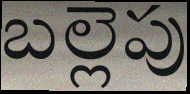
బల్లెపు